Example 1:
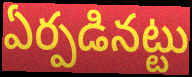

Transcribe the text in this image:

ఏర్పడినట్టు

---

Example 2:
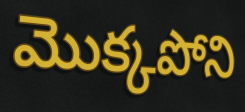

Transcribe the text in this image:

మొక్కపోని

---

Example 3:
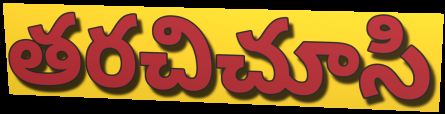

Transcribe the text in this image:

తరచిచూసి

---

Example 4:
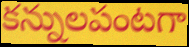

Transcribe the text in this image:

కన్నులపంటగా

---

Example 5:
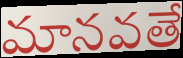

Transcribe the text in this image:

మానవతే